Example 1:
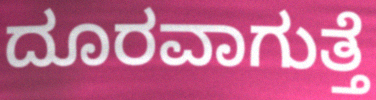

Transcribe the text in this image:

ದೂರವಾಗುತ್ತೆ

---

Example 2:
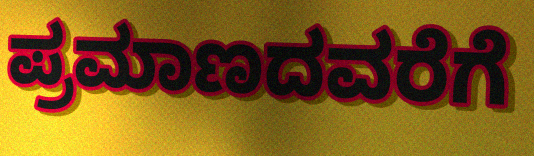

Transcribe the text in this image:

ಪ್ರಮಾಣದವರೆಗೆ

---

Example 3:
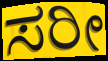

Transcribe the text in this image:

ಸರೀ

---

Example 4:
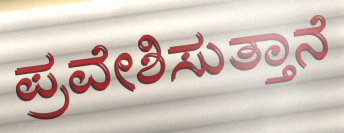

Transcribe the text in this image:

ಪ್ರವೇಶಿಸುತ್ತಾನೆ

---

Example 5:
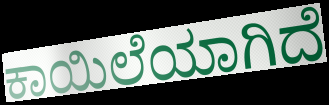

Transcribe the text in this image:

ಕಾಯಿಲೆಯಾಗಿದೆ